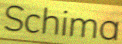
Schima